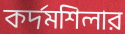
কর্দমশিলার